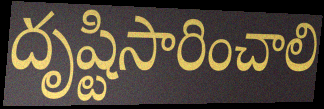
దృష్టిసారించాలి